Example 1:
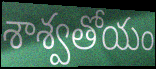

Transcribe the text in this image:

శాశ్వతోయం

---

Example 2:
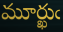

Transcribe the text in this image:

మూర్ఖుఁ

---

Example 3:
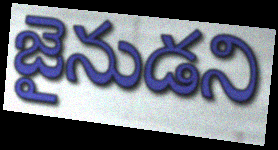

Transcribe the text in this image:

జైనుడని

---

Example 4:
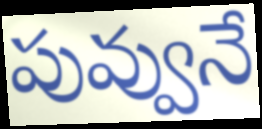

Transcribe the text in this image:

పువ్వునే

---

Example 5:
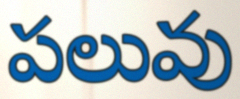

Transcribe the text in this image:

పలువు